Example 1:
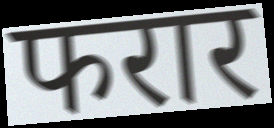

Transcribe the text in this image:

फरार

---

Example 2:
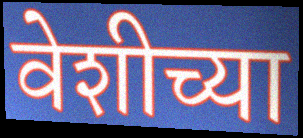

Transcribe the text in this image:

वेशीच्या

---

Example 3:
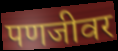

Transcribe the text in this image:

पणजीवर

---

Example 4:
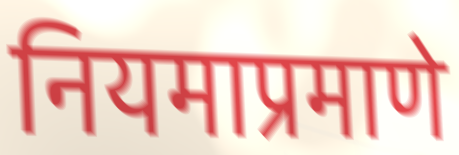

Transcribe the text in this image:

नियमाप्रमाणे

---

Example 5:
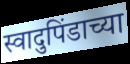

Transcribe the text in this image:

स्वादुपिंडाच्या